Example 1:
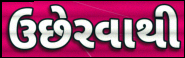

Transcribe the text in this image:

ઉછેરવાથી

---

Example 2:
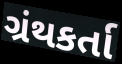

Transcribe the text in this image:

ગ્રંથકર્તા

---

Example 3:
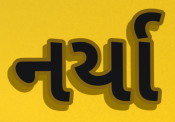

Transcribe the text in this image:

નર્યા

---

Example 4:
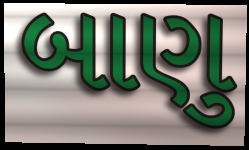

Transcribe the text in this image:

બાણુ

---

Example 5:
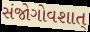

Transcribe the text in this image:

સંજોગોવશાત્